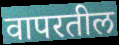
वापरतील